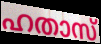
ഹതാസ്